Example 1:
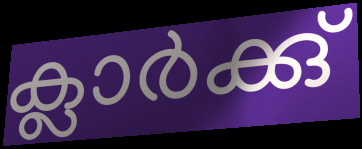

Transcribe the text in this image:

ക്ലാർക്കു്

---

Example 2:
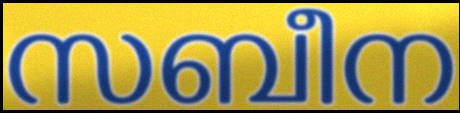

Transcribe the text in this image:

സബീന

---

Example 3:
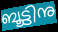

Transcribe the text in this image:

ബൂട്ടിനു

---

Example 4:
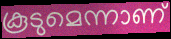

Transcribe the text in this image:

കൂടുമെന്നാണ്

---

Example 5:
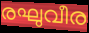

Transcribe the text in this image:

രഘുവീര